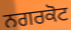
ਨਗਰਕੋਟ